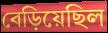
বেড়িয়েছিল